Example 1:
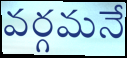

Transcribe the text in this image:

వర్గమనే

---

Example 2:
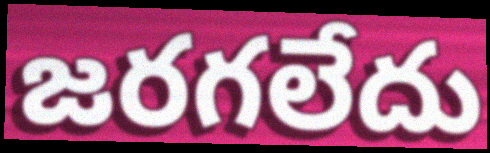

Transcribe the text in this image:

జరగలేదు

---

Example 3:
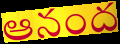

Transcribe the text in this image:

ఆనంద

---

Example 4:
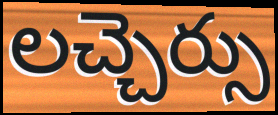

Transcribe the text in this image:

లచ్చెర్సు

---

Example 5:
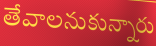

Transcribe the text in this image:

తేవాలనుకున్నారు